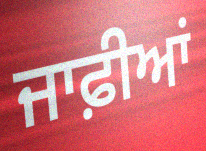
ਜਾਫ਼ੀਆਂ